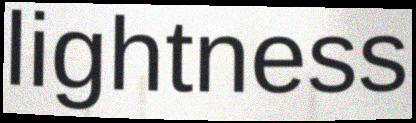
lightness